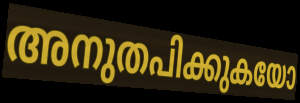
അനുതപിക്കുകയോ